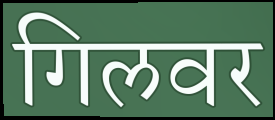
गिलवर